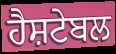
ਹੈਸ਼ਟੇਬਲ